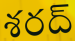
శరద్